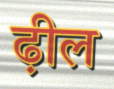
ढ़ील